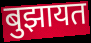
बुझायत